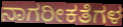
ನಾಗರೀಕತೆಗಳ